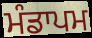
ਮੰਡਾਪਮ